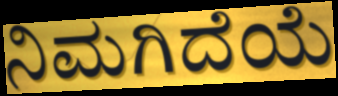
ನಿಮಗಿದೆಯೆ